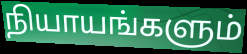
நியாயங்களும்